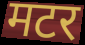
मटर